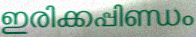
ഇരിക്കപ്പിണ്ഡം